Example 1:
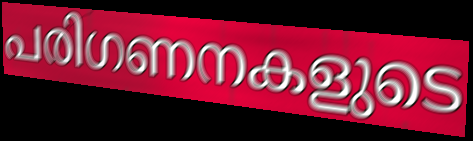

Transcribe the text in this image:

പരിഗണനകളുടെ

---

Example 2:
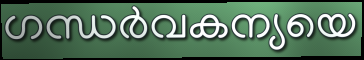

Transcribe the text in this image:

ഗന്ധർവകന്യയെ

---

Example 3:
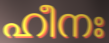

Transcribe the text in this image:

ഹീനഃ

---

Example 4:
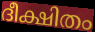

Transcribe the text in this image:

ദീക്ഷിതം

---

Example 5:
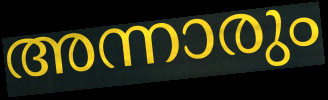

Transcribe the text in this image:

അന്നാരും